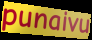
punaivu